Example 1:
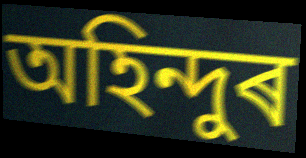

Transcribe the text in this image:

অহিন্দুৰ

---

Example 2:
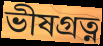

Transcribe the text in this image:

ভীষগ্ৰত্ন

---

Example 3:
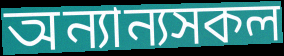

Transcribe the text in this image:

অন্যান্যসকল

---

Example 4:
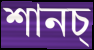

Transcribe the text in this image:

শানচ্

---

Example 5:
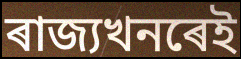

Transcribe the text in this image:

ৰাজ্যখনৰেই